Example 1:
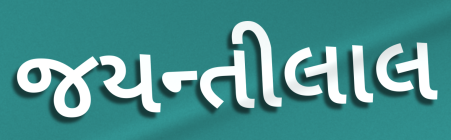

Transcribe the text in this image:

જયન્તીલાલ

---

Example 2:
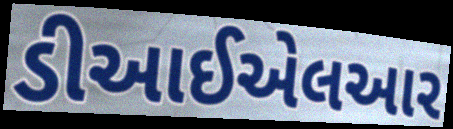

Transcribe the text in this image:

ડીઆઈએલઆર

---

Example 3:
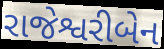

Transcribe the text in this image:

રાજેશ્વરીબેન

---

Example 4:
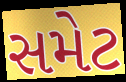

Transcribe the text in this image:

સમેટ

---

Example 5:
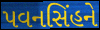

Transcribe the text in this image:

પવનસિંહને